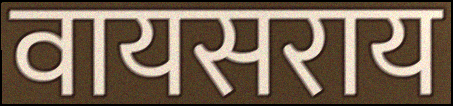
वायसराय